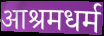
आश्रमधर्म